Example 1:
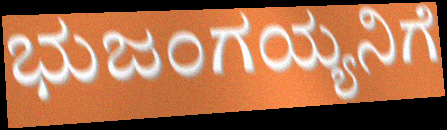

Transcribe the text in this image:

ಭುಜಂಗಯ್ಯನಿಗೆ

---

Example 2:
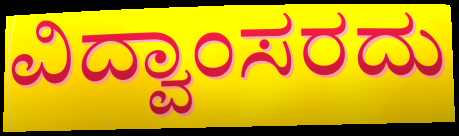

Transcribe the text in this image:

ವಿದ್ವಾಂಸರದು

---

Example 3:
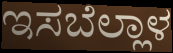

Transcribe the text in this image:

ಇಸಬೆಲ್ಲಾಳ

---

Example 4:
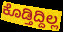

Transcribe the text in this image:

ಕೊಡ್ತಿದ್ದಿಲ್ಲ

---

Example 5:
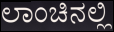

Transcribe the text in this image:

ಲಾಂಚಿನಲ್ಲಿ